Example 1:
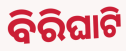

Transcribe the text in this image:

ବିରିଘାଟି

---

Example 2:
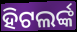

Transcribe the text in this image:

ହିଟଲର୍ଙ୍କ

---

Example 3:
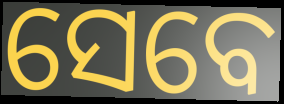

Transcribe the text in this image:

ସେବେ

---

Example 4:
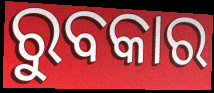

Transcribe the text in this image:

ରୁବକାର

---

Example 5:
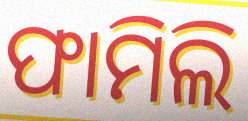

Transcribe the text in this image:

ଫାମିଲି